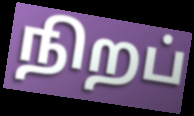
நிறப்